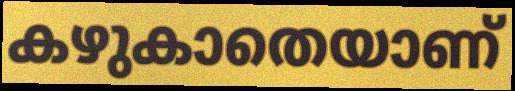
കഴുകാതെയാണ്